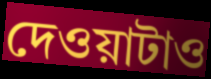
দেওয়াটাও